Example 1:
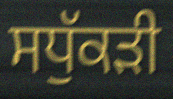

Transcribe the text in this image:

ਸਧੁੱਕੜੀ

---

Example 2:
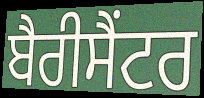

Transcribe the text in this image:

ਬੈਰੀਸੈਂਟਰ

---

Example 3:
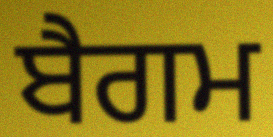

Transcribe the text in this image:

ਬੈਗਮ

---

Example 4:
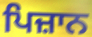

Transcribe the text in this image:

ਪਿਜ਼ਾਨ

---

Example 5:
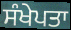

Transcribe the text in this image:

ਸੰਖੇਪਤਾ